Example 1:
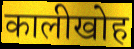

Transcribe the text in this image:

कालीखोह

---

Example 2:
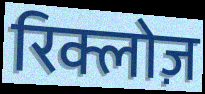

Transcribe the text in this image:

रिक्लोज़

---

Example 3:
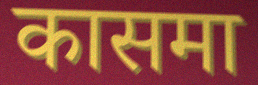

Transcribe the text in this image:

कासमा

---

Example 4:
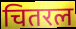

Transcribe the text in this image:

चितरल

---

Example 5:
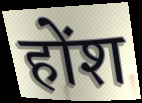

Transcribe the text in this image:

होंश